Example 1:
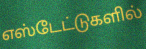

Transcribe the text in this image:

எஸ்டேட்டுகளில்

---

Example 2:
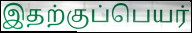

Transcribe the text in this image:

இதற்குப்பெயர்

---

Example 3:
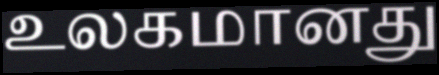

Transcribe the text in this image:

உலகமானது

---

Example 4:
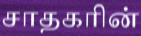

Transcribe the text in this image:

சாதகரின்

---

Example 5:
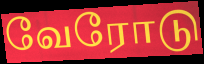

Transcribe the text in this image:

வேரோடு